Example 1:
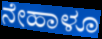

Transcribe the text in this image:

ನೇಹಾಳೂ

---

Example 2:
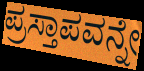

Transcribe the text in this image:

ಪ್ರಸ್ತಾಪವನ್ನೇ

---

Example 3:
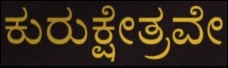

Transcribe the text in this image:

ಕುರುಕ್ಷೇತ್ರವೇ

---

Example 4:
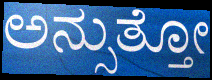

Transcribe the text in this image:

ಅನ್ಸುತ್ತೋ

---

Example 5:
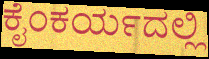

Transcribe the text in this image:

ಕೈಂಕರ್ಯದಲ್ಲಿ